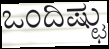
ಒಂದಿಷ್ಟು